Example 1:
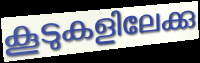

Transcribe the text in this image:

കൂടുകളിലേക്കു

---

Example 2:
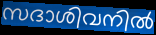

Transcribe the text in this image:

സദാശിവനിൽ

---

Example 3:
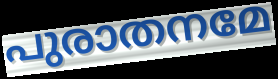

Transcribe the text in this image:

പുരാതനമേ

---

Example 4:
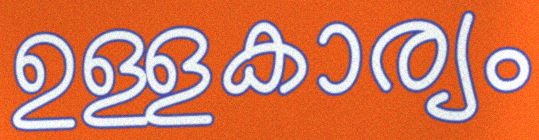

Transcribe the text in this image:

ഉള്ളകാര്യം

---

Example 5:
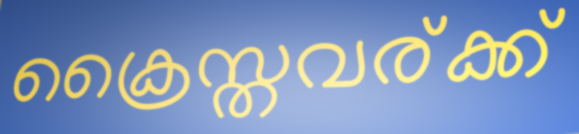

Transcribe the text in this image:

ക്രൈസ്തവര്ക്ക്